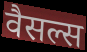
वैसल्स